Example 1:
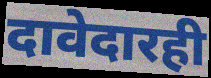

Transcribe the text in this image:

दावेदारही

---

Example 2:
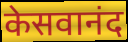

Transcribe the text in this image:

केसवानंद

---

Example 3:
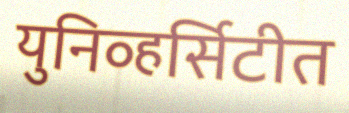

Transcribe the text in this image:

युनिव्हर्सिटीत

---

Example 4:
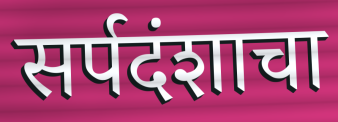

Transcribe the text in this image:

सर्पदंशाचा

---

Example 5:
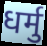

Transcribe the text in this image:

धर्मु